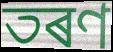
তৰণ